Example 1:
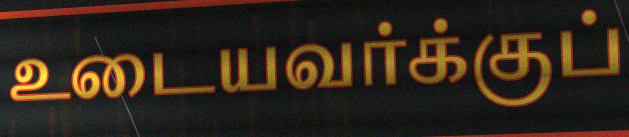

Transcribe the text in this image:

உடையவர்க்குப்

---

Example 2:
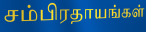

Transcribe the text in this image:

சம்பிரதாயங்கள்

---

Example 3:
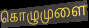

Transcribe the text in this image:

கொழுமுளை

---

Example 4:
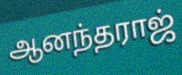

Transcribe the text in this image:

ஆனந்தராஜ்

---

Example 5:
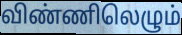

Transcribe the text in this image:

விண்ணிலெழும்